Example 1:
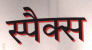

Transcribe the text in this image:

स्पैक्स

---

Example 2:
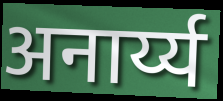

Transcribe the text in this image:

अनार्य्य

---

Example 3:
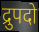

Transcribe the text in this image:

द्रुपदो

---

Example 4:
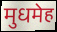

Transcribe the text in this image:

मुधमेह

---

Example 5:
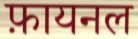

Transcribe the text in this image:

फ़ायनल